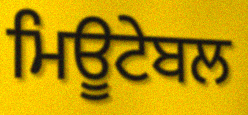
ਮਿਊਟੇਬਲ